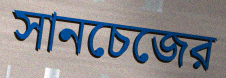
সানচেজের